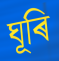
ঘূৰি